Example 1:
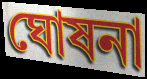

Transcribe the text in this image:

ঘোষনা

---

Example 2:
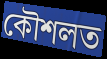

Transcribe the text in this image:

কৌশলত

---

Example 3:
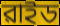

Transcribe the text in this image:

ৱাইড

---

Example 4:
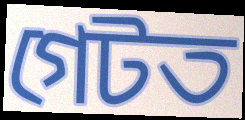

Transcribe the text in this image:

গেটত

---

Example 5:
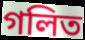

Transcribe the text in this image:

গলিত